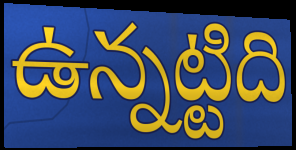
ఉన్నట్టిది